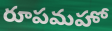
రూపమహో